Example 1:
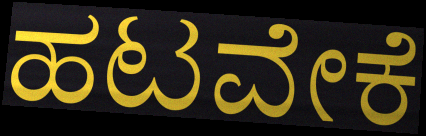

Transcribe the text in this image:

ಹಟವೇಕೆ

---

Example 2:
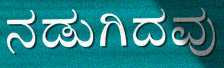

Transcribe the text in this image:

ನಡುಗಿದವು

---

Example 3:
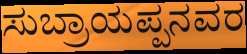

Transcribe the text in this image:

ಸುಬ್ರಾಯಪ್ಪನವರ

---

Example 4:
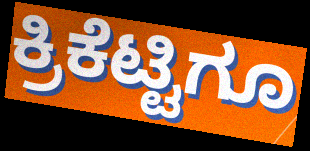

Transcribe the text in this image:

ಕ್ರಿಕೆಟ್ಟಿಗೂ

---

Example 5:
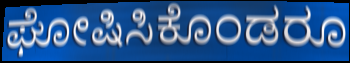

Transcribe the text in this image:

ಘೋಷಿಸಿಕೊಂಡರೂ